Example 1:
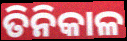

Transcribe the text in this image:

ତିନିକାଳ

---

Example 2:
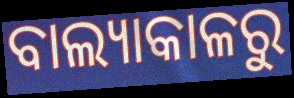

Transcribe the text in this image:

ବାଲ୍ୟାକାଳରୁ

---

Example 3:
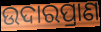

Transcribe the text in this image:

ଉଦାରପ୍ରାଣ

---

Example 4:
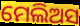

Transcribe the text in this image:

ମେଲିଅସ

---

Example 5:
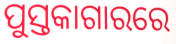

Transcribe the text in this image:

ପୁସ୍ତକାଗାରରେ